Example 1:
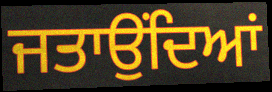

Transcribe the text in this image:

ਜਤਾਉੰਦਿਆਂ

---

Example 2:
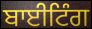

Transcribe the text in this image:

ਬਾਈਟਿੰਗ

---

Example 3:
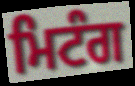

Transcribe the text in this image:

ਮਿਟੰਗ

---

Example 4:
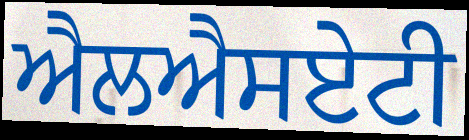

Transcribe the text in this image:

ਐਲਐਸਏਟੀ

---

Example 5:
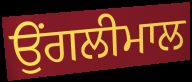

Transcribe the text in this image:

ਉਂਗਲੀਮਾਲ